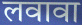
लवावा